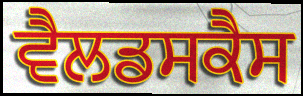
ਵੈਲਡਸਕੈਸ